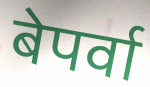
बेपर्वा